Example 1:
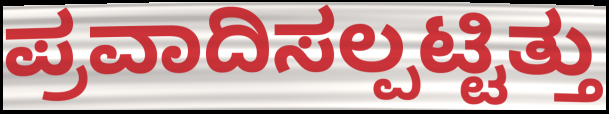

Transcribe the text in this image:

ಪ್ರವಾದಿಸಲ್ಪಟ್ಟಿತ್ತು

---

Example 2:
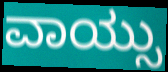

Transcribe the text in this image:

ವಾಯ್ಸು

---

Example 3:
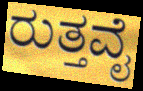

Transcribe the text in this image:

ರುತ್ತವೈ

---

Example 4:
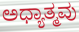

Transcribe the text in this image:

ಅಧ್ಯಾತ್ಮವು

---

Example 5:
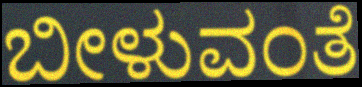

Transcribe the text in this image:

ಬೀಳುವಂತೆ